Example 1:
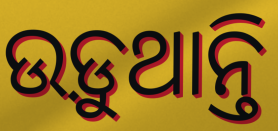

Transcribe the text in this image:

ଉଡ଼ୁଥାନ୍ତି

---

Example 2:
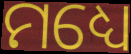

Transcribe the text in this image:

ମଧ୍ୟେ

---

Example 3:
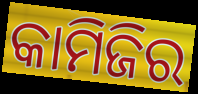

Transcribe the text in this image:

କାମିଜିର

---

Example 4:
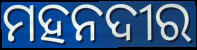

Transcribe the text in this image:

ମହନଦୀର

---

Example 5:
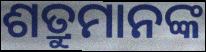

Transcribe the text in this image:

ଶତ୍ରୁମାନଙ୍କ